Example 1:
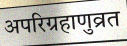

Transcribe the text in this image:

अपरिग्रहाणुव्रत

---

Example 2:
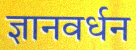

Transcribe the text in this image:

ज्ञानवर्धन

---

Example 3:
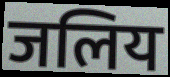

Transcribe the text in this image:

जलिय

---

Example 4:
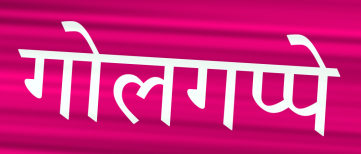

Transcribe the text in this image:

गोलगप्पे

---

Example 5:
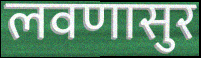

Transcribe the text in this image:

लवणासुर